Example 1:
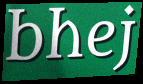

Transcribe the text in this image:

bhej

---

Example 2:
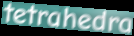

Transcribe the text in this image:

tetrahedra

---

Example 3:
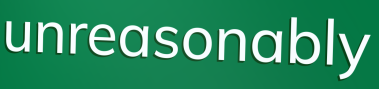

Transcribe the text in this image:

unreasonably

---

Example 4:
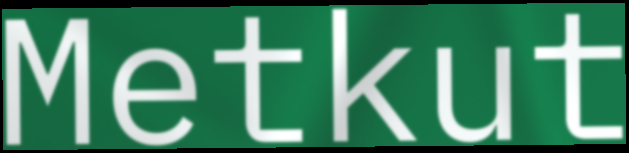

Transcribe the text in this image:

Metkut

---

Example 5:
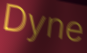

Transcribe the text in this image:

Dyne